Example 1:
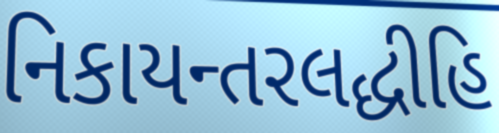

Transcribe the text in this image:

નિકાયન્તરલદ્ધીહિ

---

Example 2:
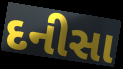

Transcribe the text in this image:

દનીસા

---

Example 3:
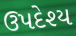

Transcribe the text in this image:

ઉપદેશ્ય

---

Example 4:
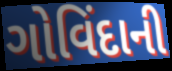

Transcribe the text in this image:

ગોવિંદાની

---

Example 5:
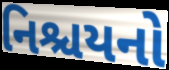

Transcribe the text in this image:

નિશ્ચયનો